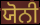
ਯੋਨੀ